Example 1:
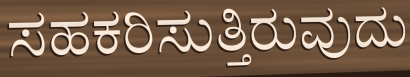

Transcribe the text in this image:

ಸಹಕರಿಸುತ್ತಿರುವುದು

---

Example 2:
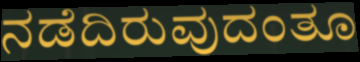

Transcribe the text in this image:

ನಡೆದಿರುವುದಂತೂ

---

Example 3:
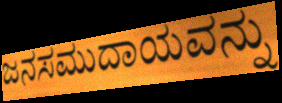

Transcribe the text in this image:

ಜನಸಮುದಾಯವನ್ನು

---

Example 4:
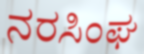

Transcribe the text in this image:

ನರಸಿಂಘ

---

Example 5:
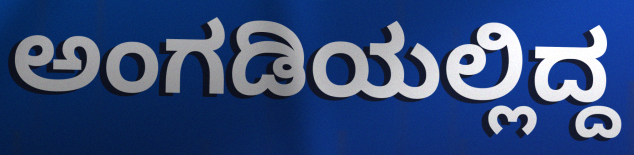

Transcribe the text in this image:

ಅಂಗಡಿಯಲ್ಲಿದ್ದ